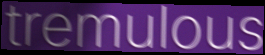
tremulous